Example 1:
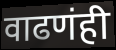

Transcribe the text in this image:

वाढणंही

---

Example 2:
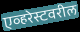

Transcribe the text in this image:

एव्हरेस्टवरील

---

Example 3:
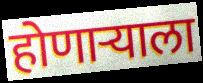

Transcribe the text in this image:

होणाऱ्याला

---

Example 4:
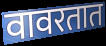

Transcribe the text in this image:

वावरतात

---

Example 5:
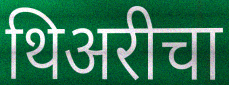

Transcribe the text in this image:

थिअरीचा